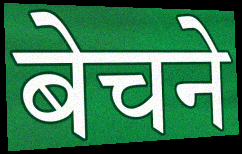
बेचने